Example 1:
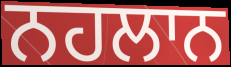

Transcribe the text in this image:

ਨਹਲਾਨ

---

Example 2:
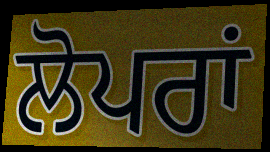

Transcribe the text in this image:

ਲੋਪਰਾਂ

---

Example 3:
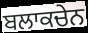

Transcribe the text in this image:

ਬਲਾਕਚੇਨ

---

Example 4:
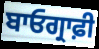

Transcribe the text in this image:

ਬਾਓਗ੍ਰਾਫ਼ੀ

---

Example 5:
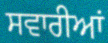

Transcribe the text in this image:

ਸਵਾਰੀਆਂ